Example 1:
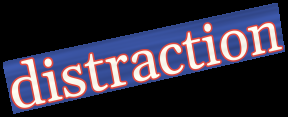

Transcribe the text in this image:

distraction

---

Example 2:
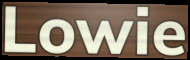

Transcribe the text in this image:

Lowie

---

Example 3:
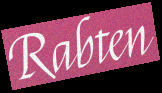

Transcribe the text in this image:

Rabten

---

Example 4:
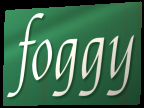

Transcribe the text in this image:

foggy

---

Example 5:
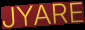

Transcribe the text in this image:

JYARE